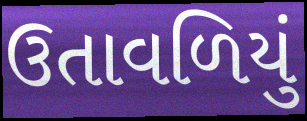
ઉતાવળિયું